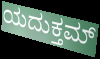
ಯದುಕ್ತಮ್